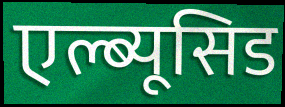
एल्ब्यूसिड